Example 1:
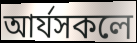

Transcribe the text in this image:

আৰ্যসকলে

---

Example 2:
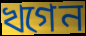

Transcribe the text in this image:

খগেন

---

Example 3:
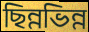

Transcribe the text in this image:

ছিন্নভিন্ন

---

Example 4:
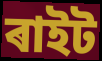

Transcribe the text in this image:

ৰাইট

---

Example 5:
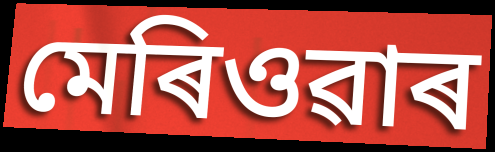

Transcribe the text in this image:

মেৰিওৱাৰ